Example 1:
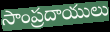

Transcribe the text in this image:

సాంప్రదాయులు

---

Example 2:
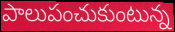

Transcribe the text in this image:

పాలుపంచుకుంటున్న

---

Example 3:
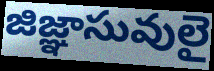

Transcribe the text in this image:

జిజ్ఞాసువులై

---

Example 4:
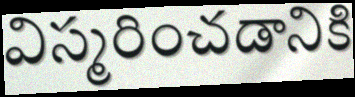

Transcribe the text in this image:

విస్మరించడానికి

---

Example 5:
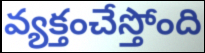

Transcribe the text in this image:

వ్యక్తంచేస్తోంది